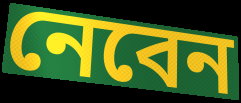
নেবেন